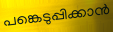
പങ്കെടുപ്പിക്കാൻ